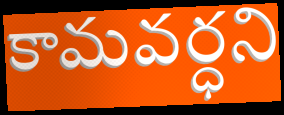
కామవర్ధని